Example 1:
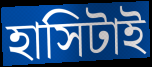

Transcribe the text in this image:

হাসিটাই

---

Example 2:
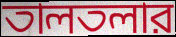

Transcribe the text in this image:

তালতলার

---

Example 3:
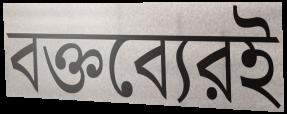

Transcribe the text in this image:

বক্তব্যেরই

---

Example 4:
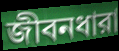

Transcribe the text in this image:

জীবনধারা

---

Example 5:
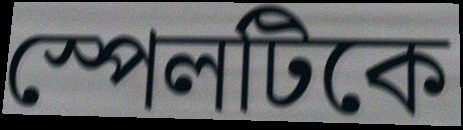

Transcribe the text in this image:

স্পেলটিকে